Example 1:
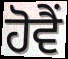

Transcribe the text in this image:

ਹੋਵੈਂ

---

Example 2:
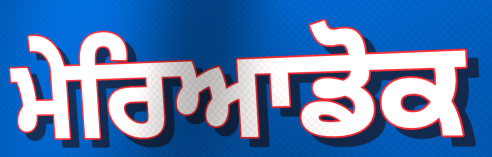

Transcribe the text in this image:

ਮੇਰਿਆਡੋਕ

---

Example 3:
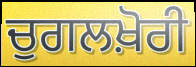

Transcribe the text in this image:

ਚੁਗਲਖ਼ੋਰੀ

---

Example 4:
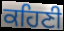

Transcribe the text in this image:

ਕਹਿਣੀ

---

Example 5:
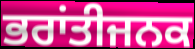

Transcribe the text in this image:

ਭਰਾਂਤੀਜਨਕ